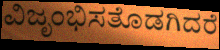
ವಿಜೃಂಭಿಸತೊಡಗಿದರೆ